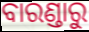
ବାରଣ୍ଡାରୁ